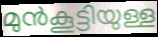
മുൻകൂട്ടിയുള്ള